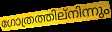
ഗോത്രത്തില്നിന്നും